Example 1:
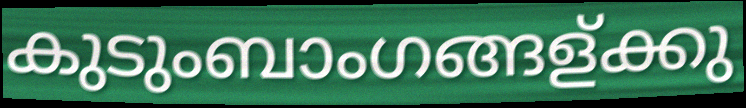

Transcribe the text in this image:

കുടുംബാംഗങ്ങള്ക്കു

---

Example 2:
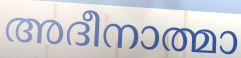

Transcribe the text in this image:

അദീനാത്മാ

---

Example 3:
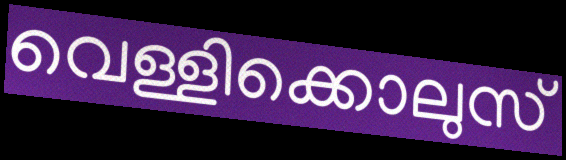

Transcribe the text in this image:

വെള്ളിക്കൊലുസ്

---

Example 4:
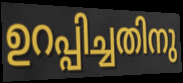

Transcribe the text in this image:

ഉറപ്പിച്ചതിനു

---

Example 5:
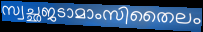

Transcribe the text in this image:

സ്വച്ഛജടാമാംസിതൈലം